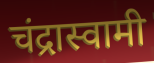
चंद्रास्वामी